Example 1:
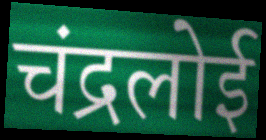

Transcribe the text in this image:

चंद्रलोई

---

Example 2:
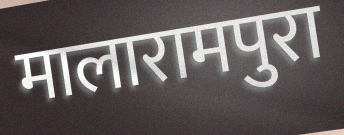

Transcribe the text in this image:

मालारामपुरा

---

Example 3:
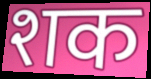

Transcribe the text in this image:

शक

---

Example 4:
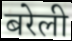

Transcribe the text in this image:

बरेली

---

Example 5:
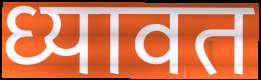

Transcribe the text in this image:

ध्यावत